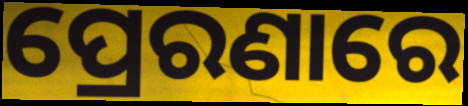
ପ୍ରେରଣାରେ